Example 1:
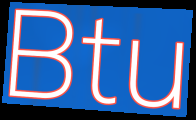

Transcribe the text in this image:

Btu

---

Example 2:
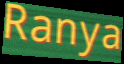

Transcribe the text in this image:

Ranya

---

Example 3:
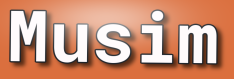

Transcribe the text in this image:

Musim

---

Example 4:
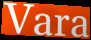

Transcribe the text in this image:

Vara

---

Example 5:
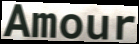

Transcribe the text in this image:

Amour